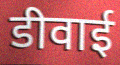
डीवाई